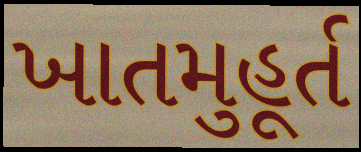
ખાતમુહૂર્ત